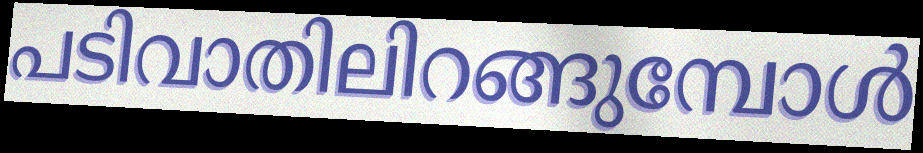
പടിവാതിലിറങ്ങുമ്പോൾ